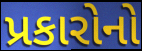
પ્રકારોનો